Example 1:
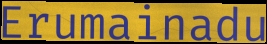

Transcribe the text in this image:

Erumainadu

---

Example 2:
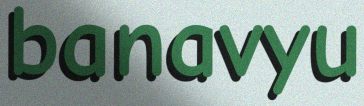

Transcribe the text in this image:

banavyu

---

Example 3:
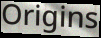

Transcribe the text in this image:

Origins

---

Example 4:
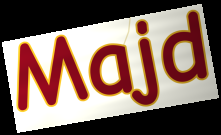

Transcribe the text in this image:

Majd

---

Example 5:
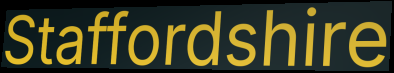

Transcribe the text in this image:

Staffordshire